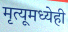
मृत्यूमध्येही